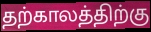
தற்காலத்திற்கு